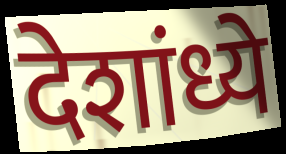
देशांध्ये